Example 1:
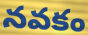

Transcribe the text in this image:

నవకం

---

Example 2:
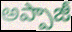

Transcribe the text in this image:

అప్పాజీ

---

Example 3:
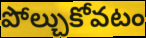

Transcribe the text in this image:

పోల్చుకోవటం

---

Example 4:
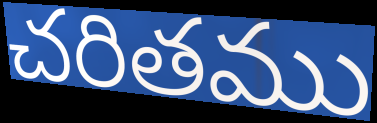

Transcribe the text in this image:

చరితము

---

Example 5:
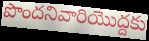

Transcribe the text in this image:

పొందనివారియొద్దకు